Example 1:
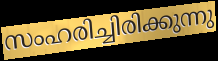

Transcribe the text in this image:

സംഹരിച്ചിരിക്കുന്നു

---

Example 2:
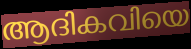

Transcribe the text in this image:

ആദികവിയെ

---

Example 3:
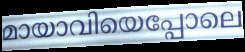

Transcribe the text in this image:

മായാവിയെപ്പോലെ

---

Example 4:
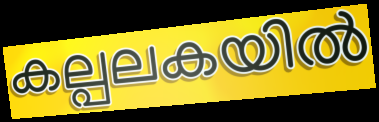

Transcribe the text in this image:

കല്പലകയിൽ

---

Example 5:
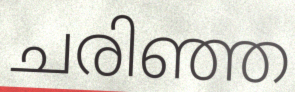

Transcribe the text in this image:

ചരിഞ്ഞ